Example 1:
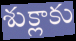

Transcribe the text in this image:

శుక్లాకు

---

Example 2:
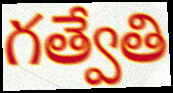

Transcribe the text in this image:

గత్వేతి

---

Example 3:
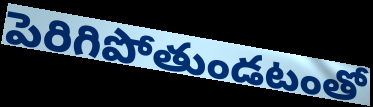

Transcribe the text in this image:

పెరిగిపోతుండటంతో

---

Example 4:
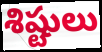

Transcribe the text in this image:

శిష్టులు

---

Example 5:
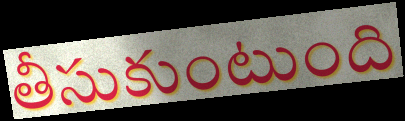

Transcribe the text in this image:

తీసుకుంటుంది